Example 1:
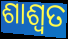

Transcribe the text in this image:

ଶାଶ୍ୱତ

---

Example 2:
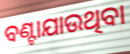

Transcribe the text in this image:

ବଣ୍ଟାଯାଉଥିବା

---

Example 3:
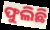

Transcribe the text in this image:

ଫୁଲିଛି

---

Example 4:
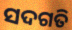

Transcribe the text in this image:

ସଦଗତି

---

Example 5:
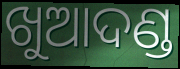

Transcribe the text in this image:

ଖୁଆଦଣ୍ଡ